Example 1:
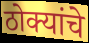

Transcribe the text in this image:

ठोक्यांचे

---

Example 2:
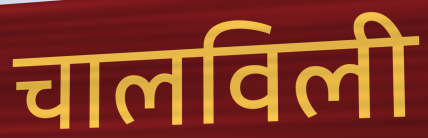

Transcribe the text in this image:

चालविली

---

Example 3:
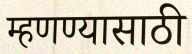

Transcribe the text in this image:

म्हणण्यासाठी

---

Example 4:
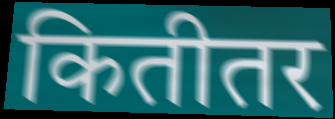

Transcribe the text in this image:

कितीतर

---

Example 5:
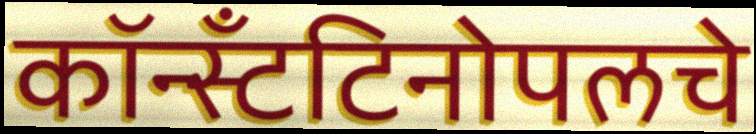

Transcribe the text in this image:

कॉन्स्टँटिनोपलचे